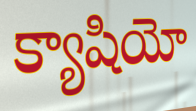
క్యాషియో